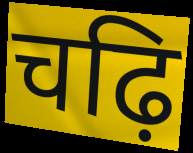
चढ़ि